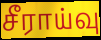
சீராய்வு